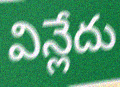
విన్లేదు